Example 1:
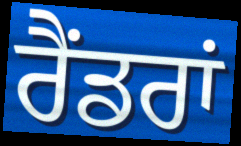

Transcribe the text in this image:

ਰੈਂਡਰਾਂ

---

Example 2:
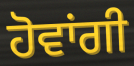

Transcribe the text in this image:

ਹੋਵਾਂਗੀ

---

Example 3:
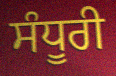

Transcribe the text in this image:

ਸੰਧੂਰੀ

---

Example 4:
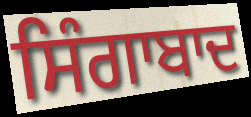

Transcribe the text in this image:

ਸਿੰਗਾਬਾਦ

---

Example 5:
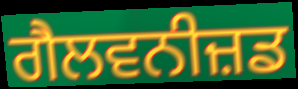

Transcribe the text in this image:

ਗੈਲਵਨੀਜ਼ਡ